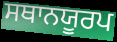
ਸਥਾਨਯੂਰਪ